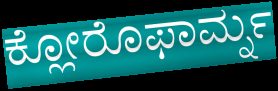
ಕ್ಲೋರೊಫಾರ್ಮ್ನ